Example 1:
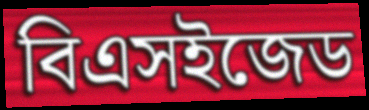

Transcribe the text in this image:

বিএসইজেড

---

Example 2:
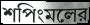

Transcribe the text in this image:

শপিংমলের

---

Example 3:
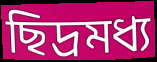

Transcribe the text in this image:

ছিদ্রমধ্য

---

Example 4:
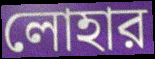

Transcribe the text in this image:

লোহার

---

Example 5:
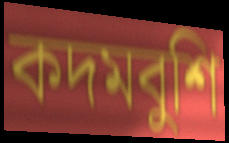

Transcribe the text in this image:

কদমবুশি